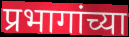
प्रभागांच्या